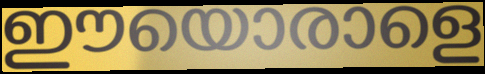
ഈയൊരാളെ